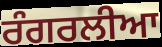
ਰੰਗਰਲੀਆ